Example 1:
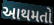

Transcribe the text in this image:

આથમતો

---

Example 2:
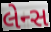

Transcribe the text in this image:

લેન્સ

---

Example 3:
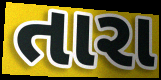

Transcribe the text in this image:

તારા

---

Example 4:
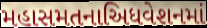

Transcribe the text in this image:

મહાસમતનાઅિધવેશનમાં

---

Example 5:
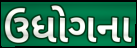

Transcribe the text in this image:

ઉધોગના